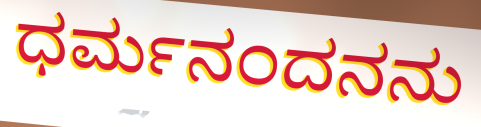
ಧರ್ಮನಂದನನು